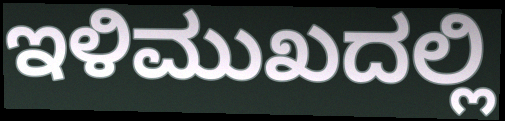
ಇಳಿಮುಖದಲ್ಲಿ